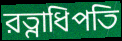
রত্নাধিপতি